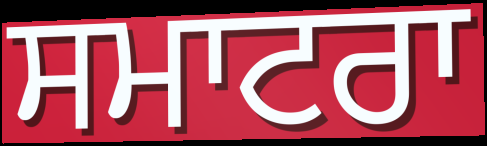
ਸਮਾਟਰਾ